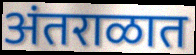
अंतराळात